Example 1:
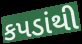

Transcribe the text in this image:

કપડાંથી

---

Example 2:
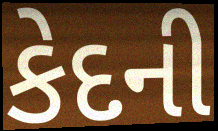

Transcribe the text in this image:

કેદની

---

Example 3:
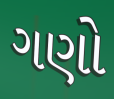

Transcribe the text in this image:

ગણો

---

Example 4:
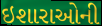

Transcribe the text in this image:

ઇશારાઓની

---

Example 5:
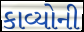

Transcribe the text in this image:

કાવ્યોની